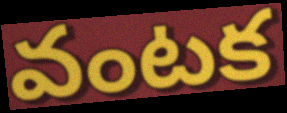
వంటక